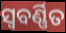
ସ୍ୱବର୍ଣ୍ଣିତ